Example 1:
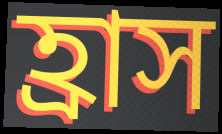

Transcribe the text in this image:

হ্রাস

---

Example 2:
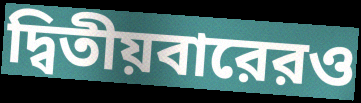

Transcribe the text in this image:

দ্বিতীয়বারেরও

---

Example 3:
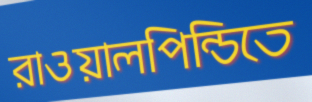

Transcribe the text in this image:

রাওয়ালপিন্ডিতে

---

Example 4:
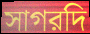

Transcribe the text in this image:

সাগরদি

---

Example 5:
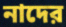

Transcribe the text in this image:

নাদের